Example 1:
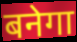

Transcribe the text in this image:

बनेगा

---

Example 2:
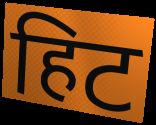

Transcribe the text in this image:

हिट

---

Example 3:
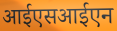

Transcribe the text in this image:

आईएसआईएन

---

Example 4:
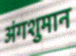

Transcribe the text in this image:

अंगशुमान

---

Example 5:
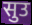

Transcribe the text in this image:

सुउ